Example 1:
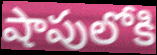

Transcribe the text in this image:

షాపులోకి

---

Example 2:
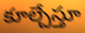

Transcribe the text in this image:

కూల్చేస్తూ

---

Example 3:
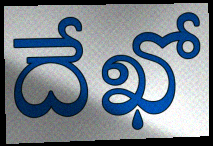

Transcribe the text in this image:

దేఖో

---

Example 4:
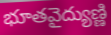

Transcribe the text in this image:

భూతవైద్యుణ్ణి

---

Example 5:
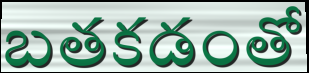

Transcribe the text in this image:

బతకడంతో